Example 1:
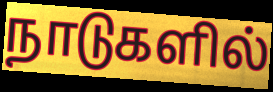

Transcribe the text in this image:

நாடுகளில்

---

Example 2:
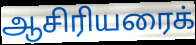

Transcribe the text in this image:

ஆசிரியரைக்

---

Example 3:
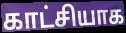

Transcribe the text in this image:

காட்சியாக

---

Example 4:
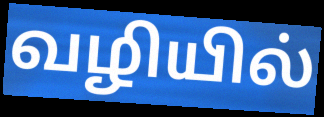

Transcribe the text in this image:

வழியில்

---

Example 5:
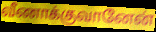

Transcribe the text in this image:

வீணாக்குவானேன்